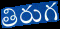
తిరుగ